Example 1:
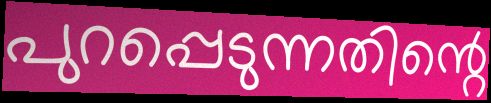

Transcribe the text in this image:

പുറപ്പെടുന്നതിന്റെ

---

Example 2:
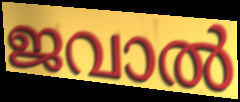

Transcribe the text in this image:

ജവാൽ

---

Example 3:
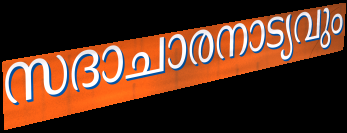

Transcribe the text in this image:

സദാചാരനാട്യവും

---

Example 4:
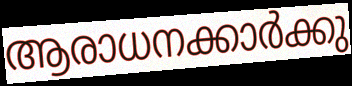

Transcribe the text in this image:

ആരാധനക്കാർക്കു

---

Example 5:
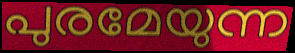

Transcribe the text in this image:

പുരമേയുന്ന